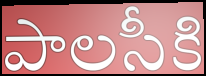
పాలసీకి